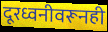
दूरध्वनीवरूनही